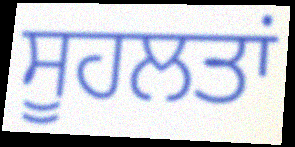
ਸੂਹਲਤਾਂ